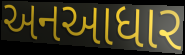
અનઆધાર